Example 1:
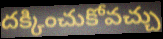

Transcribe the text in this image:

దక్కించుకోవచ్చు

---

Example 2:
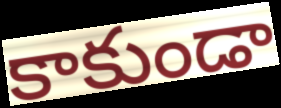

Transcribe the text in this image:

కాకుండా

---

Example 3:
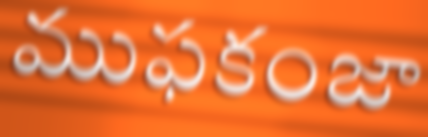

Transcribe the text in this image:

ముఫకంజా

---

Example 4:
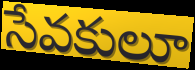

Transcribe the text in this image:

సేవకులూ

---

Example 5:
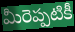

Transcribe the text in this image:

మీరెప్పటికీ